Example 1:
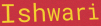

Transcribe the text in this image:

Ishwari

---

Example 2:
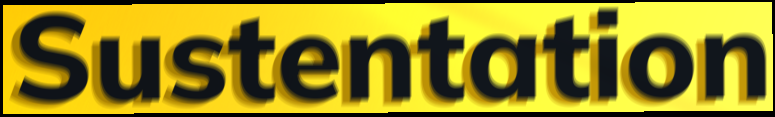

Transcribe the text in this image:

Sustentation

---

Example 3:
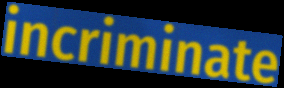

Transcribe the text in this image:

incriminate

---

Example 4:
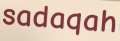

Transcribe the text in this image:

sadaqah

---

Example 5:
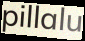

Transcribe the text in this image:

pillalu